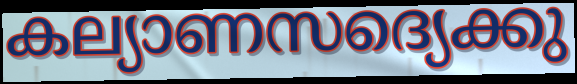
കല്യാണസദ്യെക്കു